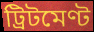
ট্ৰিটমেণ্ট